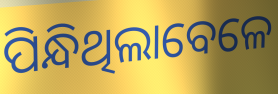
ପିନ୍ଧିଥିଲାବେଳେ